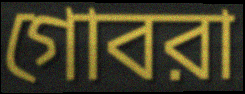
গোবরা